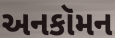
અનકૉમન